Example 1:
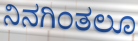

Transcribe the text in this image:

ನಿನಗಿಂತಲೂ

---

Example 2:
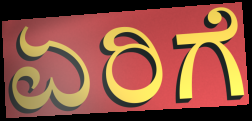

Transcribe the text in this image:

ಏರಿಗೆ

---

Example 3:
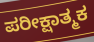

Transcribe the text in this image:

ಪರೀಕ್ಷಾತ್ಮಕ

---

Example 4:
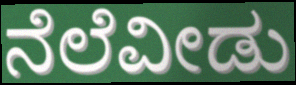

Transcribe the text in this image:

ನೆಲೆವೀಡು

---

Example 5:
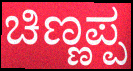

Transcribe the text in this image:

ಚಿಣ್ಣಪ್ಪ